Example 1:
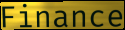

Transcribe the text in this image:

Finance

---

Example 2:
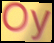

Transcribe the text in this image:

Oy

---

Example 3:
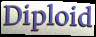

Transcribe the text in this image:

Diploid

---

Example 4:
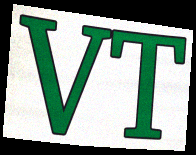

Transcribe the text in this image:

VT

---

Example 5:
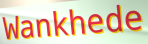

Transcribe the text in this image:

Wankhede